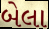
બેલા